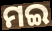
ମଇ